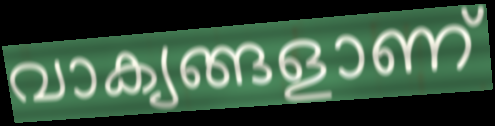
വാക്യങ്ങളാണ്